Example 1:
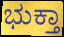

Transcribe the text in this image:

ಭುಕ್ತಾ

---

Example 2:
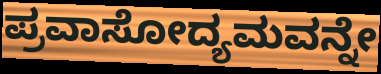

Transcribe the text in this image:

ಪ್ರವಾಸೋದ್ಯಮವನ್ನೇ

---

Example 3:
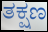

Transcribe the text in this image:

ತಕ್ಷಣ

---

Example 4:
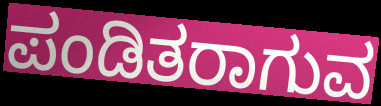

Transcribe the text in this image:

ಪಂಡಿತರಾಗುವ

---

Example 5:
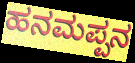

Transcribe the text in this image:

ಹನಮಪ್ಪನ